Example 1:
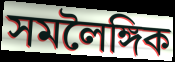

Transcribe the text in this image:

সমলৈঙ্গিক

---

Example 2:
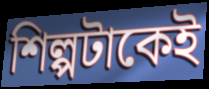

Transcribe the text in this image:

শিল্পটাকেই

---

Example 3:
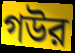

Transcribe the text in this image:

গউর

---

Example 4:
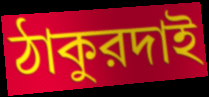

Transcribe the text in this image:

ঠাকুরদাই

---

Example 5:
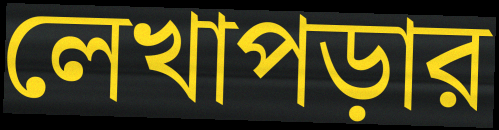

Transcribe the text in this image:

লেখাপড়ার